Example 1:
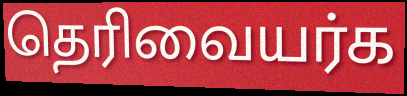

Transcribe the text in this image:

தெரிவையர்க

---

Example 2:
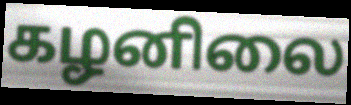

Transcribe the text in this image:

கழனிலை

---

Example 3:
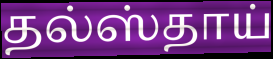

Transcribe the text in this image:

தல்ஸ்தாய்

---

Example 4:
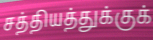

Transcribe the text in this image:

சத்தியத்துக்குக்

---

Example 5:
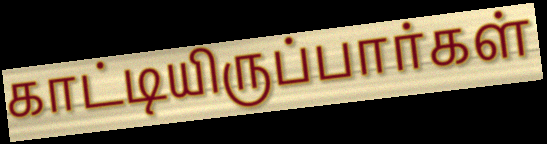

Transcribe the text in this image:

காட்டியிருப்பார்கள்